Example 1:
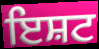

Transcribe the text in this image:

ਇਸ਼ਟ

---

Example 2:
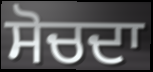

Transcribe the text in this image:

ਸੋਚਦਾ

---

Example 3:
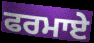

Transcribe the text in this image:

ਫਰਮਾਏ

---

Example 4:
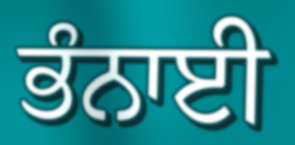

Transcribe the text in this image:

ਭੰਨਾਈ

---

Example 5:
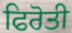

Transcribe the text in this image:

ਫਿਰੋਤੀ